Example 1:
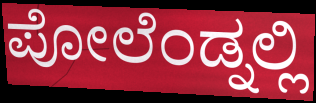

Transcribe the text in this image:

ಪೋಲೆಂಡ್ನಲ್ಲಿ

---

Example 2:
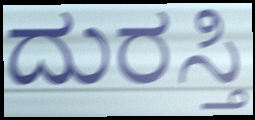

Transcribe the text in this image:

ದುರಸ್ತಿ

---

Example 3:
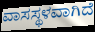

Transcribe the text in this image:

ವಾಸಸ್ಥಳವಾಗಿದೆ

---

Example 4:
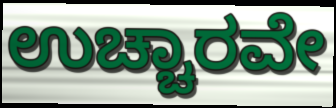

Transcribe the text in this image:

ಉಚ್ಚಾರವೇ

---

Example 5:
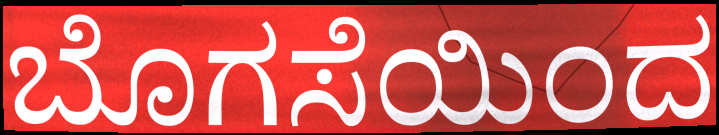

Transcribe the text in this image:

ಬೊಗಸೆಯಿಂದ